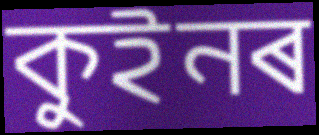
কুইনৰ